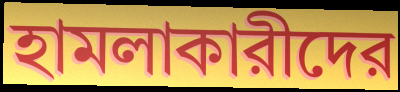
হামলাকারীদের